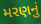
મરણનું